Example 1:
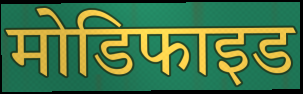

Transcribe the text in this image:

मोडिफाइड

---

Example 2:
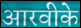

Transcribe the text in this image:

आरवीके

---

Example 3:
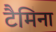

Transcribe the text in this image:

टैमिना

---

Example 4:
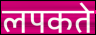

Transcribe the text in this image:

लपकते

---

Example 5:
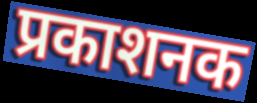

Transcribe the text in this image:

प्रकाशनक